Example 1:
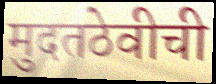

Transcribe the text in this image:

मुदतठेवीची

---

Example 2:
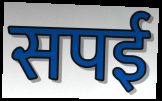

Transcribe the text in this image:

सपई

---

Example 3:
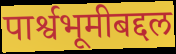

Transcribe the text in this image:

पार्श्वभूमीबद्दल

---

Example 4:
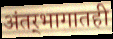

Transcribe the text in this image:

अंतर्भागातही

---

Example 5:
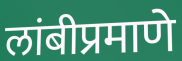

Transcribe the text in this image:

लांबीप्रमाणे